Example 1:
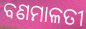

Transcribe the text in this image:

ବଣମାଳତୀ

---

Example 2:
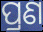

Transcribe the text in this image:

ପ୍ରଣ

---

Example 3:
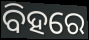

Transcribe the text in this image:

ବିହରେ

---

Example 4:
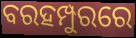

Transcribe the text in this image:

ବରହମ୍ପୁରରେ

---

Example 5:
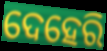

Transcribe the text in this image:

ଦେହେରି